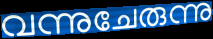
വന്നുചേരുന്നു